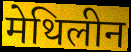
मेथिलीन